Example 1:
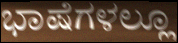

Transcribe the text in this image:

ಭಾಷೆಗಳಲ್ಲೂ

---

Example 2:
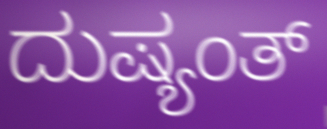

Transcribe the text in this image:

ದುಷ್ಯಂತ್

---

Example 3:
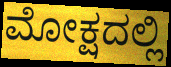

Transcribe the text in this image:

ಮೋಕ್ಷದಲ್ಲಿ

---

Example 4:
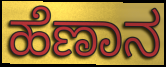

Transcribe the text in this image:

ಹೆಣಾನ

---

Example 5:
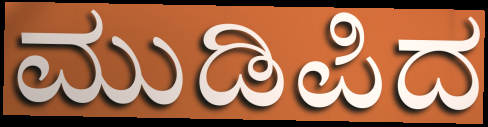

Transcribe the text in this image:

ಮುಡಿಪಿದ